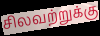
சிலவற்றுக்கு